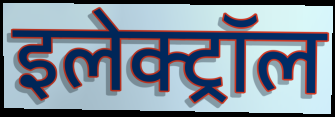
इलेक्ट्रॉल